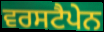
ਵਰਸਟੈਪੇਨ